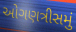
ઓગણત્રીસમું